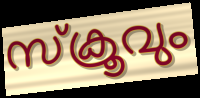
സ്ക്രൂവും